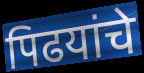
पिढयांचे